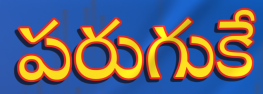
పరుగుకే